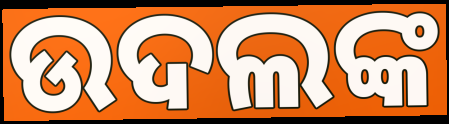
ଉଦଲଙ୍କ